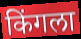
किंगला